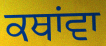
ਕਥਾਂਵਾ